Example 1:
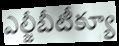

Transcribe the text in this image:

ఎల్జీబీటీక్యూ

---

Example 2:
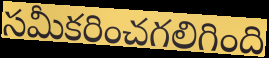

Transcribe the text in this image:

సమీకరించగలిగింది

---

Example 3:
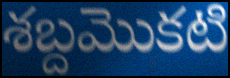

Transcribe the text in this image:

శబ్దమొకటి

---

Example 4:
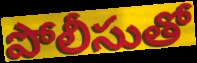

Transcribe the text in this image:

పోలీసుతో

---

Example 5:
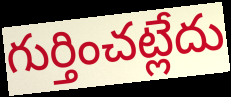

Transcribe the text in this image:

గుర్తించట్లేదు